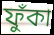
ফুঁকা